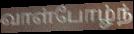
வாள்போழ்ந்